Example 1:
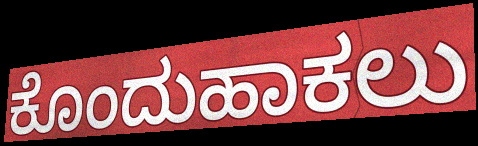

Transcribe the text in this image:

ಕೊಂದುಹಾಕಲು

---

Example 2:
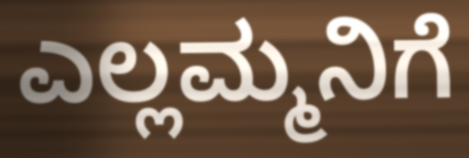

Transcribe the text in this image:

ಎಲ್ಲಮ್ಮನಿಗೆ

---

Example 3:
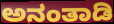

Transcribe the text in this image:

ಅನಂತಾಡಿ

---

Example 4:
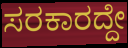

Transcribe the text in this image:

ಸರಕಾರದ್ದೇ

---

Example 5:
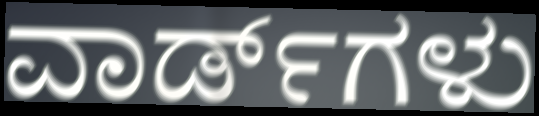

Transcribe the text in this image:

ವಾರ್ಡ್‌ಗಳು